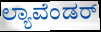
ಲ್ಯಾವೆಂಡರ್